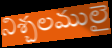
నిశ్చలములై